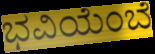
ಭವಿಯೆಂಬೆ